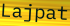
Lajpat